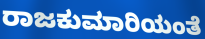
ರಾಜಕುಮಾರಿಯಂತೆ